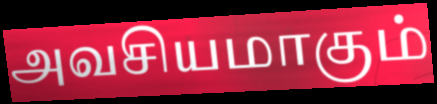
அவசியமாகும்